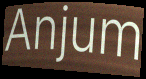
Anjum